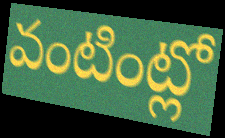
వంటింట్లో